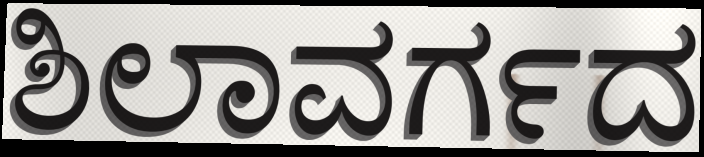
ಶಿಲಾವರ್ಗದ